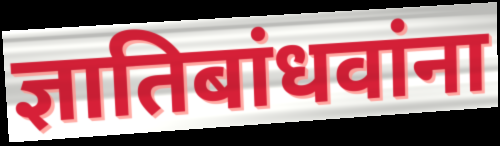
ज्ञातिबांधवांना